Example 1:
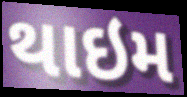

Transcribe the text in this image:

થાઇમ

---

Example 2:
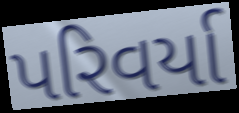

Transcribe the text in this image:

પરિવર્યા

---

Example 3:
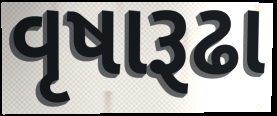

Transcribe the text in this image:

વૃષારૂઢા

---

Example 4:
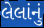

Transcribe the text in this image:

લેલાંનું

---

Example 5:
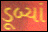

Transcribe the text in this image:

ડૂબ્યાં